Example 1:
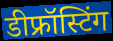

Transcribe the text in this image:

डीफ्रॉस्टिंग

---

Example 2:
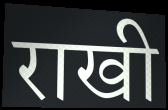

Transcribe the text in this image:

राखी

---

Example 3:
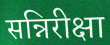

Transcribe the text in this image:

सन्निरीक्षा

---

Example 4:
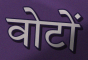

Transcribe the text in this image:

वोटों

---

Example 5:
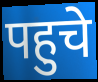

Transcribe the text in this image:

पहुचे